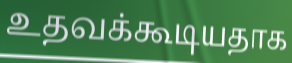
உதவக்கூடியதாக